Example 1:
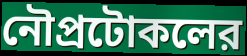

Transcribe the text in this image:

নৌপ্রটোকলের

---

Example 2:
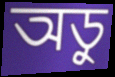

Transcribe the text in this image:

অডু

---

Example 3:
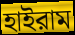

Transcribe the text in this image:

হাইরাম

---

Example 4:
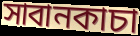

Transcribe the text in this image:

সাবানকাচা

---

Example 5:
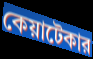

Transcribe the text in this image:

কেয়াটেকার